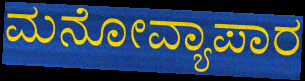
ಮನೋವ್ಯಾಪಾರ